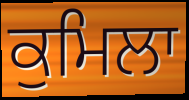
ਕੁਮਿਲਾ